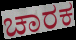
ಚಾರಕ